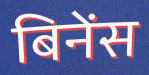
बिनेंस